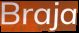
Braja